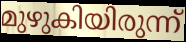
മുഴുകിയിരുന്ന്